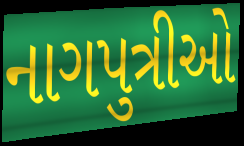
નાગપુત્રીઓ